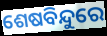
ଶେଷବିନ୍ଦୁରେ